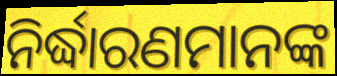
ନିର୍ଦ୍ଧାରଣମାନଙ୍କ